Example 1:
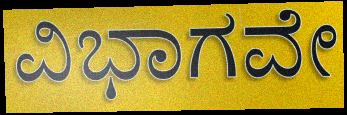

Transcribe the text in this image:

ವಿಭಾಗವೇ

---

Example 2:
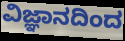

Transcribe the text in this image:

ವಿಜ್ಞಾನದಿಂದ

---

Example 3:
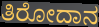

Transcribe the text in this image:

ತಿರೋದಾನ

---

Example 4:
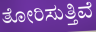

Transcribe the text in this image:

ತೋರಿಸುತ್ತಿವೆ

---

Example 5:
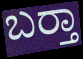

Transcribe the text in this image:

ಬರ‍್ತಾ